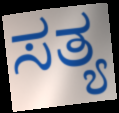
ಸತ್ಯ